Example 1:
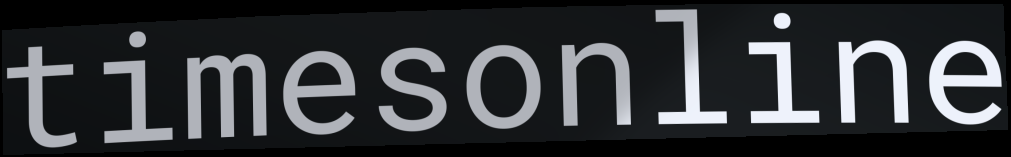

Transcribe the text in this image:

timesonline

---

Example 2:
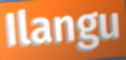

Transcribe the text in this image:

Ilangu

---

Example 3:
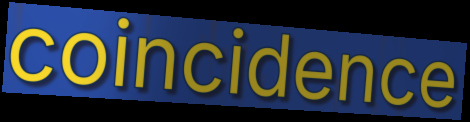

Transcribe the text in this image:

coincidence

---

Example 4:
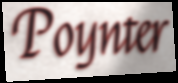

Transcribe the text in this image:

Poynter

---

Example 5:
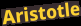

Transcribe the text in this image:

Aristotle